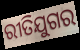
ରୀତିଯୁଗର